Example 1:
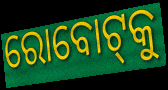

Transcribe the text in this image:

ରୋବୋଟ୍‌କୁ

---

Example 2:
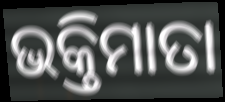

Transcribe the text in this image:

ଭକ୍ତିମାତା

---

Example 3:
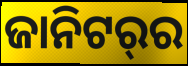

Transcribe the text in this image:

ଜାନିଟର୍‌ର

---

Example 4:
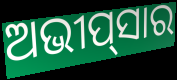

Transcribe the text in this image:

ଅଭୀପ୍‌ସାର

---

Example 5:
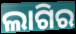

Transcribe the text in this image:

ଲାଗିର